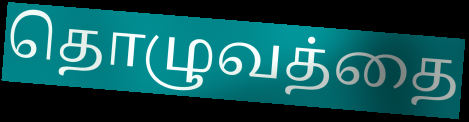
தொழுவத்தை